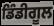
ਡਿੰਡੀਗੂਲ